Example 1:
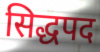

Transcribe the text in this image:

सिद्धपद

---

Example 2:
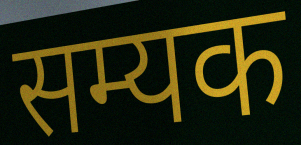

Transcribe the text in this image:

सम्यक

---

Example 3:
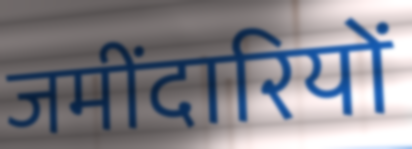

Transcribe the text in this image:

जमींदारियों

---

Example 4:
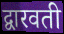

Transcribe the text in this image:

द्वारवती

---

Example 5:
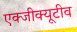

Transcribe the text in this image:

एक्जीक्यूटीव